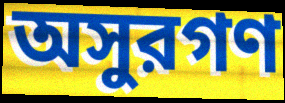
অসুরগণ